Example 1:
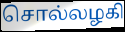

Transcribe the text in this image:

சொல்லழகி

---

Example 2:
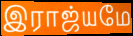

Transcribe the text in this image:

இராஜ்யமே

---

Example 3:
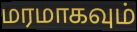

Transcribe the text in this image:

மரமாகவும்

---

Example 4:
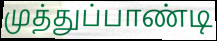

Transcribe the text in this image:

முத்துப்பாண்டி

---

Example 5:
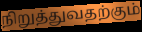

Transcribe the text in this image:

நிறுத்துவதற்கும்